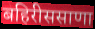
बहिरीससाणा